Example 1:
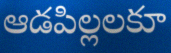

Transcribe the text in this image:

ఆడపిల్లలకూ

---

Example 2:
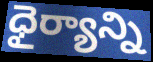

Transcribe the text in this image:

ధైర్యాన్ని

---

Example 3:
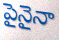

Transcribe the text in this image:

పైనైనా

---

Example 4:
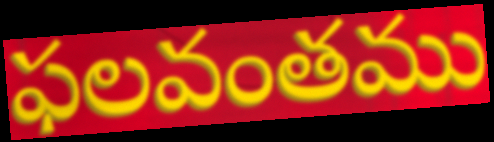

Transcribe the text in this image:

ఫలవంతము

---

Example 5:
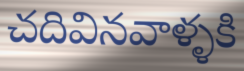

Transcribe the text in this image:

చదివినవాళ్ళకి